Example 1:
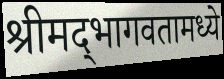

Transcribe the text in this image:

श्रीमद्‌भागवतामध्ये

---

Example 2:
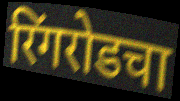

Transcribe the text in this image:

रिंगरोडचा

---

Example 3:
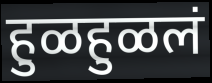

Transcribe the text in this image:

हुळहुळलं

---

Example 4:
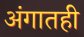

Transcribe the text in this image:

अंगातही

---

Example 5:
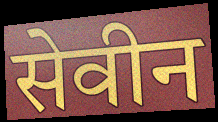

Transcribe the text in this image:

सेवीन